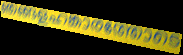
ഞങ്ങളഹങ്കാരത്തോടെ